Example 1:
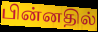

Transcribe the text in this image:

பின்னதில்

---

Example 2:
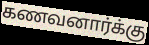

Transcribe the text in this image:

கணவனார்க்கு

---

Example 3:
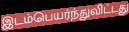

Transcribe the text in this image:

இடம்பெயர்ந்துவிட்டது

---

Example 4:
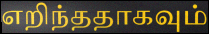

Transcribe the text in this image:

எறிந்ததாகவும்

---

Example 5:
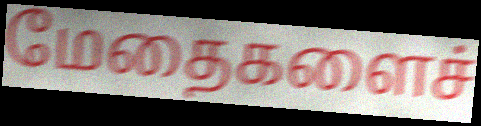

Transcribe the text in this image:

மேதைகளைச்